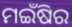
ମଇଁଷିର